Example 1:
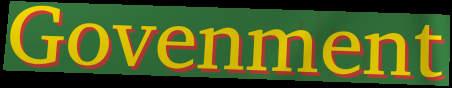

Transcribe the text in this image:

Govenment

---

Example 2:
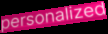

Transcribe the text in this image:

personalized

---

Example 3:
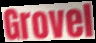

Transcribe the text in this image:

Grovel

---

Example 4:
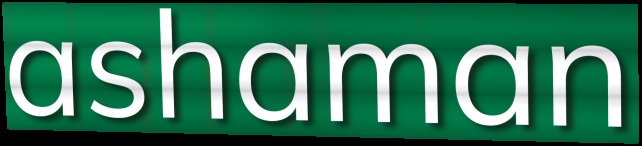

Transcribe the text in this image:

ashaman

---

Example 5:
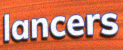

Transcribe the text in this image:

lancers